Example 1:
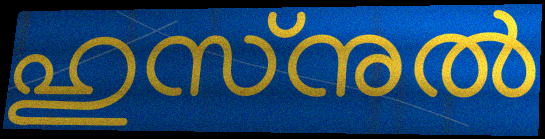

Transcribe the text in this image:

ഹുസ്നുൽ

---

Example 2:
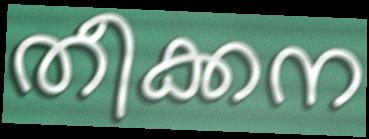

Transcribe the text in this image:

തീക്കന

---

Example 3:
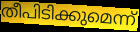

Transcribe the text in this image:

തീപിടിക്കുമെന്ന്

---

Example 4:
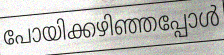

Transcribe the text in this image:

പോയിക്കഴിഞ്ഞപ്പോൾ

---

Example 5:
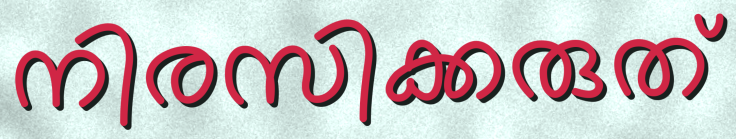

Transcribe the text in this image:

നിരസിക്കരുത്